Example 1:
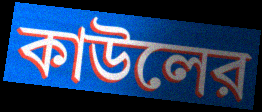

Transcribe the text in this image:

কাউলের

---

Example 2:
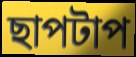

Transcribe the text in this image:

ছাপটাপ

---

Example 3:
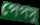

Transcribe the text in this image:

পেপসু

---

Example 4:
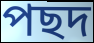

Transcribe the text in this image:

পছদ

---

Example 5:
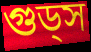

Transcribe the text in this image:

গুড্স